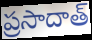
ప్రసాదాత్